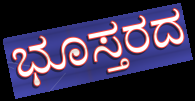
ಭೂಸ್ತರದ